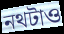
নথটাও